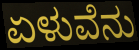
ಏಳುವೆನು